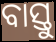
ବାସ୍ତୁ